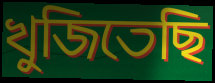
খুজিতেছি